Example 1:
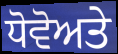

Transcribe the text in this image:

ਧੋਵੋਅਤੇ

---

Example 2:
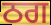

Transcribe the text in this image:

ਠਗ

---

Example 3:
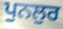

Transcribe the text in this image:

ਪੁਨਲੁਰ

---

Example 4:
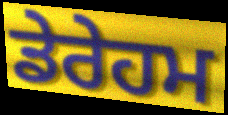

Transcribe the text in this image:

ਡੇਰੇਹਮ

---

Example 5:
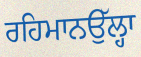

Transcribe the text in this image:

ਰਹਿਮਾਨਉੱਲ੍ਹਾ